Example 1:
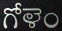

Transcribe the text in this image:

గోళెం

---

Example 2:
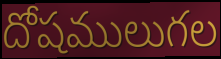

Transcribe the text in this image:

దోషములుగల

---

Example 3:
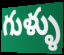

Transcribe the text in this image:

గుళ్ళు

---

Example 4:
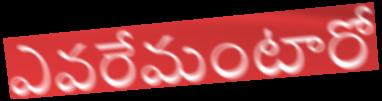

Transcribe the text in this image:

ఎవరేమంటారో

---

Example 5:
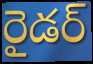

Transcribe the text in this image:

రైడర్